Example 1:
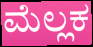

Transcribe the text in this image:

ಮೆಲ್ಲಕ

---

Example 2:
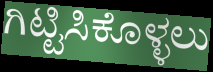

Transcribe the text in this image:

ಗಿಟ್ಟಿಸಿಕೊಳ್ಳಲು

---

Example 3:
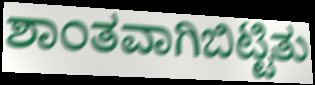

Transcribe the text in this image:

ಶಾಂತವಾಗಿಬಿಟ್ಟಿತು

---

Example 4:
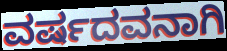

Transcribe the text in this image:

ವರ್ಷದವನಾಗಿ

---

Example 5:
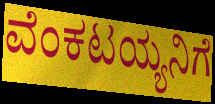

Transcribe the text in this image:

ವೆಂಕಟಯ್ಯನಿಗೆ